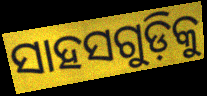
ସାହସଗୁଡ଼ିକୁ